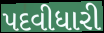
પદવીધારી